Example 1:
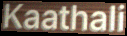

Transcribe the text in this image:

Kaathali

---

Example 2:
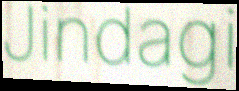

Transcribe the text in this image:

Jindagi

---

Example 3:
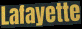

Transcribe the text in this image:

Lafayette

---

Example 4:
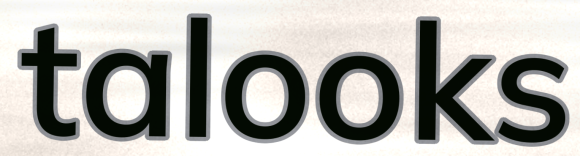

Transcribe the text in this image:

talooks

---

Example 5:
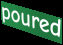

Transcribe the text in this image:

poured